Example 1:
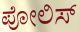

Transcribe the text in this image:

ಪೋಲಿಸ್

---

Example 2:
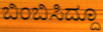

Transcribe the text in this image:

ಬಿಂಬಿಸಿದ್ದೂ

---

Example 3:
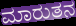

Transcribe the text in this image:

ಮಾರುತನ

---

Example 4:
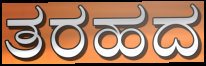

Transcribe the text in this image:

ತರಹದ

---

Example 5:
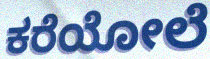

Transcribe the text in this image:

ಕರೆಯೋಲೆ